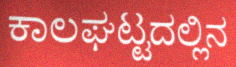
ಕಾಲಘಟ್ಟದಲ್ಲಿನ